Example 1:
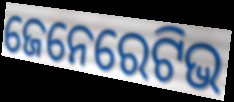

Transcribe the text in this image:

ଜେନେରେଟିଭ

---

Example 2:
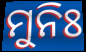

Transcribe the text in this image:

ମୁନିଃ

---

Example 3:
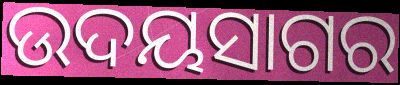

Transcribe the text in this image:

ଉଦୟସାଗର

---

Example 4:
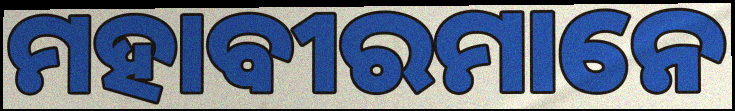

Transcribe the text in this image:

ମହାବୀରମାନେ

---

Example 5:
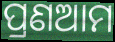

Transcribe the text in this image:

ପ୍ରଣଆମ